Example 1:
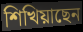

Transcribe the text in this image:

শিখিয়াছেন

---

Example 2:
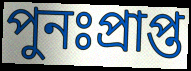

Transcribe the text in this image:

পুনঃপ্রাপ্ত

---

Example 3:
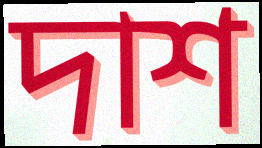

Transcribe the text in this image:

দাশ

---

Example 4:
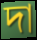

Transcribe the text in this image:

দা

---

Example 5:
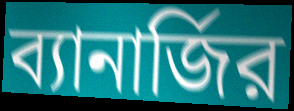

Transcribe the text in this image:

ব্যানার্জির